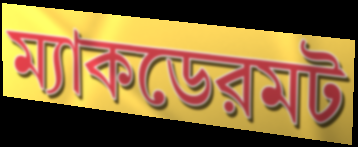
ম্যাকডেরমট